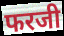
फरजी